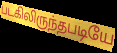
படகிலிருந்தபடியே